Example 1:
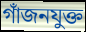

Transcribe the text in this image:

গাঁজনযুক্ত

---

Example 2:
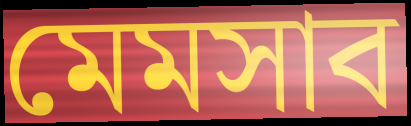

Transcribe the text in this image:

মেমসাব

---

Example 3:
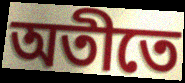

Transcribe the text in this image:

অতীতে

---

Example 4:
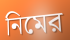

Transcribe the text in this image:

নিমের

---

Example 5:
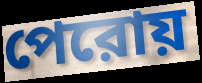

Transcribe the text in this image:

পেরোয়